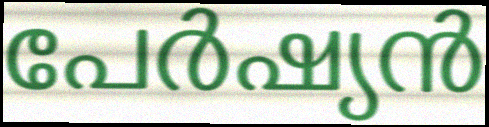
പേർഷ്യൻ